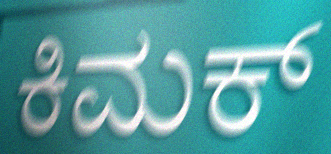
ಕಿಮಕ್